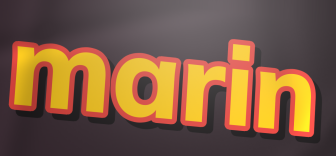
marin